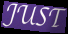
JUST